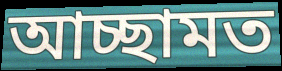
আচ্ছামত